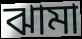
ঝামা